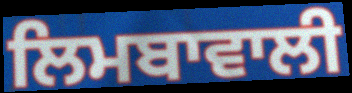
ਲਿਮਬਾਵਾਲੀ